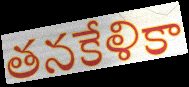
తనకేళికా